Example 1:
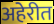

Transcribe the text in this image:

अहेरीत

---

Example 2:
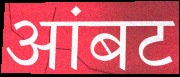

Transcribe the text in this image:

आंबट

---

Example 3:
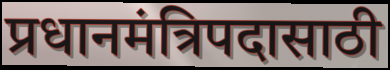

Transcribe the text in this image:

प्रधानमंत्रिपदासाठी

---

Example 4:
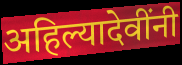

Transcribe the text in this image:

अहिल्यादेवींनी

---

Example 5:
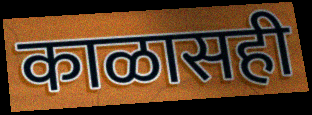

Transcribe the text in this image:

काळासही